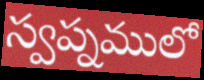
స్వప్నములో